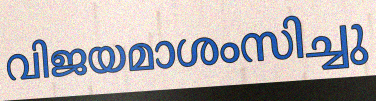
വിജയമാശംസിച്ചു